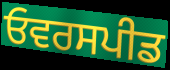
ਓਵਰਸਪੀਡ